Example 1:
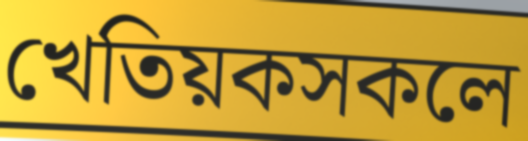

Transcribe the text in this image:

খেতিয়কসকলে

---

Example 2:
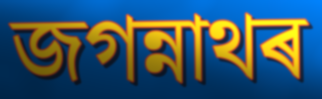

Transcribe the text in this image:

জগন্নাথৰ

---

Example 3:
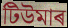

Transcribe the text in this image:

টিউমাৰ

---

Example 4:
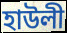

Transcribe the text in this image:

হাউলী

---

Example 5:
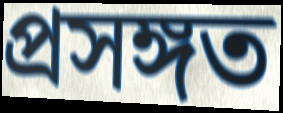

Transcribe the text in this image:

প্ৰসঙ্গত